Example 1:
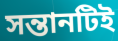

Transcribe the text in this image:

সন্তানটিই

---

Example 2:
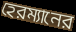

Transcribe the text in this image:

হেরম্যানের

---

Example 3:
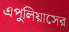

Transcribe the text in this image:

এপুলিয়াসের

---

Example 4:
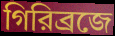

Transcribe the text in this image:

গিরিব্রজে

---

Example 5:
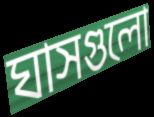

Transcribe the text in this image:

ঘাসগুলো